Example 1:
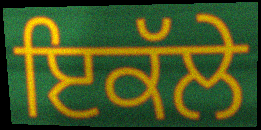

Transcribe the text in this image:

ਇਕੱਲੇ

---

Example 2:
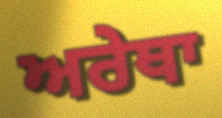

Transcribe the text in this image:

ਅਰੇਥਾ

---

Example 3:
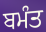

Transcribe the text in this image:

ਬਮੰਤ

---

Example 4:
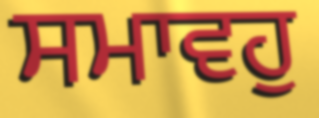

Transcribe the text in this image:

ਸਮਾਵਹੁ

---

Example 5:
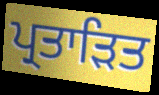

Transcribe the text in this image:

ਪ੍ਰਤਾੜਿਤ